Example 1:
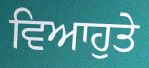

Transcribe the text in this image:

ਵਿਆਹੁਤੇ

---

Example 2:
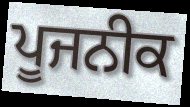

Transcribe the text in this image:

ਪੂਜਨੀਕ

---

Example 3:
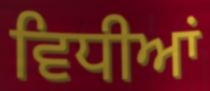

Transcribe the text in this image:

ਵਿਧੀਆਂ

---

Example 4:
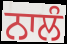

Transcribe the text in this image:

ਨਾਲੰ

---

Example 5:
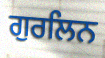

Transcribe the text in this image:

ਗੁਰਲਿਨ